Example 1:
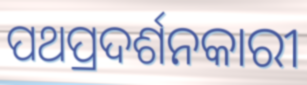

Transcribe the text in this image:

ପଥପ୍ରଦର୍ଶନକାରୀ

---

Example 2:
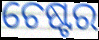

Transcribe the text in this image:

ଚେଷ୍ଟର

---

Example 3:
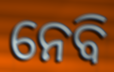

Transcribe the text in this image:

ନେବି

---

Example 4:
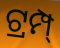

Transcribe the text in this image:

ଟ୍ରମ୍ପ୍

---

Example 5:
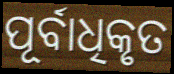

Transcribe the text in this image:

ପୂର୍ବାଧିକୃତ